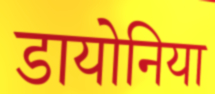
डायोनिया